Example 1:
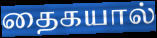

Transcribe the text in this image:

தைகயால்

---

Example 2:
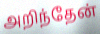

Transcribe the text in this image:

அறிந்தேன்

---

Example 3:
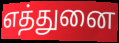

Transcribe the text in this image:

எத்துனை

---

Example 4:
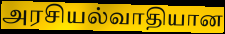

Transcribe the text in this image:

அரசியல்வாதியான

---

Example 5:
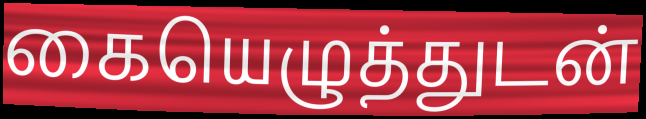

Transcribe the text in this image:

கையெழுத்துடன்